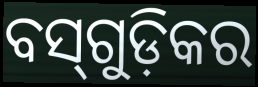
ବସ୍‌ଗୁଡ଼ିକର